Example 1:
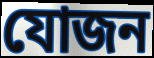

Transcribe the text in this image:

যোজন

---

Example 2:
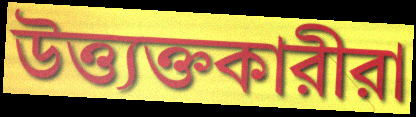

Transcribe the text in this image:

উত্ত্যক্তকারীরা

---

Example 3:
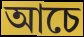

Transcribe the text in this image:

আচে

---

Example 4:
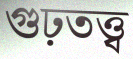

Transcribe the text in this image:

গুঢ়তত্ত্ব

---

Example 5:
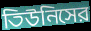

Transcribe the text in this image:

তিউনিসের